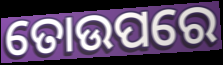
ତୋଉପରେ